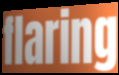
flaring